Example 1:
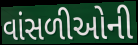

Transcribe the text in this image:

વાંસળીઓની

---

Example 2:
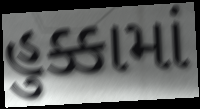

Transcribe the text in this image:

હુક્કામાં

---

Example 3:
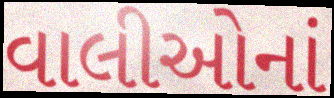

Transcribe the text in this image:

વાલીઓનાં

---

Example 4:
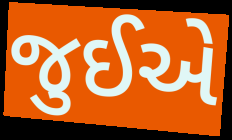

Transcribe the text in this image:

જુઈએ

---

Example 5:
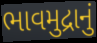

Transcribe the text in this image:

ભાવમુદ્રાનું